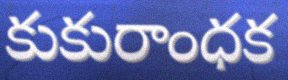
కుకురాంధక